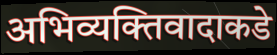
अभिव्यक्तिवादाकडे